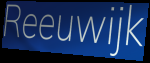
Reeuwijk